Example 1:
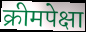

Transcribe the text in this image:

क्रीमपेक्षा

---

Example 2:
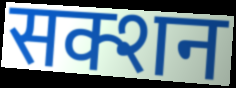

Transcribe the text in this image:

सक्शन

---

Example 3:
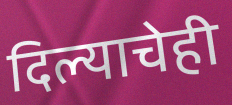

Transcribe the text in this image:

दिल्याचेही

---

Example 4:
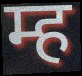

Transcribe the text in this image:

म्ह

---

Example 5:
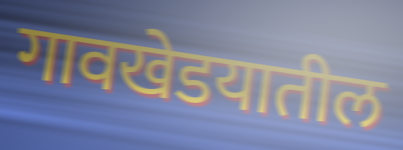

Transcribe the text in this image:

गावखेडयातील